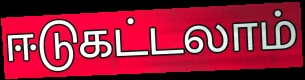
ஈடுகட்டலாம்